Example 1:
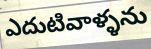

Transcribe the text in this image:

ఎదుటివాళ్ళను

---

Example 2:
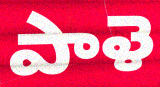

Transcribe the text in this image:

పాళె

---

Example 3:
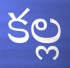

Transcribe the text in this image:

కల్ల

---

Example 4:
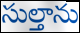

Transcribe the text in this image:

సుల్తాను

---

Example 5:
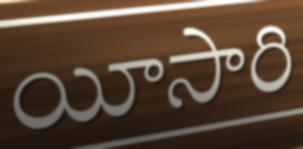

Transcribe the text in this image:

యీసారి